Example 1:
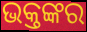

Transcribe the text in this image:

ଭକ୍ତଙ୍କର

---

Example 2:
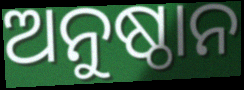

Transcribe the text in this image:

ଅନୁଷ୍ଠାନ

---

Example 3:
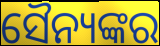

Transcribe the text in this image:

ସୈନ୍ୟଙ୍କର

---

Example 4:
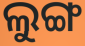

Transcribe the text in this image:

ଲୁଙ୍ଗ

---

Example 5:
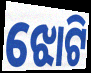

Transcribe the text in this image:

ଝୋଟି